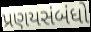
પ્રણયસંબંધો